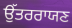
ਉੱਤਰਰਾਯਣ